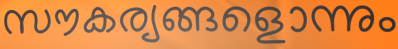
സൗകര്യങ്ങളൊന്നും